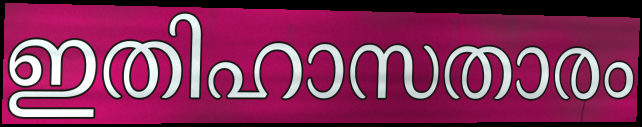
ഇതിഹാസതാരം